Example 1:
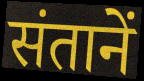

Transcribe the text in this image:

संतानें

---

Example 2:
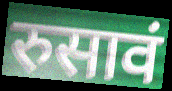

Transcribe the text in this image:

रुसावं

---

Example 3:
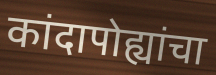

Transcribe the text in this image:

कांदापोह्यांचा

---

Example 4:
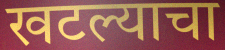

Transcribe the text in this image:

खटल्याचा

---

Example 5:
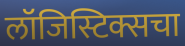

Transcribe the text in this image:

लॉजिस्टिक्सचा